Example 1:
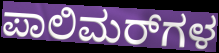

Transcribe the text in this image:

ಪಾಲಿಮರ್‌ಗಳ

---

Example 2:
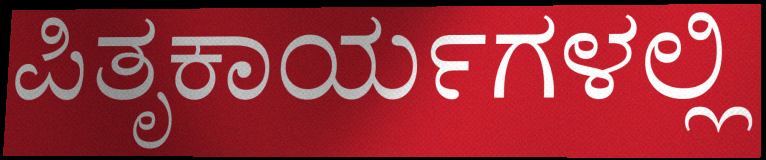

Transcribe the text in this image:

ಪಿತೃಕಾರ್ಯಗಳಲ್ಲಿ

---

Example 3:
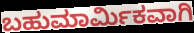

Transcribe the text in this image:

ಬಹುಮಾರ್ಮಿಕವಾಗಿ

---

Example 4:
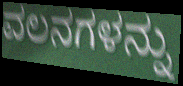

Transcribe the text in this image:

ವಲನಗಳನ್ನು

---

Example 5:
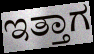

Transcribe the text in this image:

ಇತ್ತಾಗ